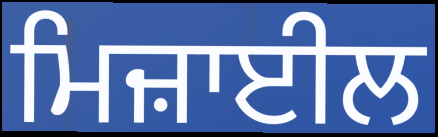
ਮਿਜ਼ਾਈਲ